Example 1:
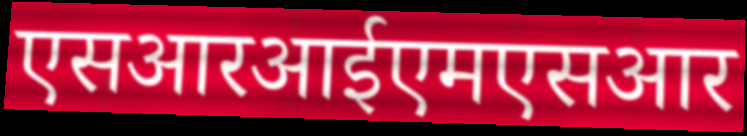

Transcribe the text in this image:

एसआरआईएमएसआर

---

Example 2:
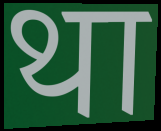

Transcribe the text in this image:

था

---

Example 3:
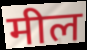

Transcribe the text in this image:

मील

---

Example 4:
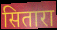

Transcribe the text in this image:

सितारा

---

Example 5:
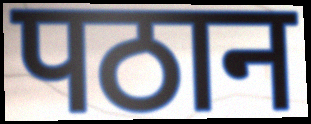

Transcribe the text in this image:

पठान